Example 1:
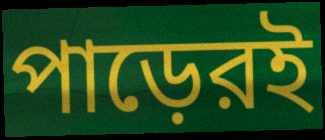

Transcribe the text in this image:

পাড়েরই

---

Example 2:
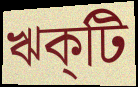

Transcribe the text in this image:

ঋক্‌টি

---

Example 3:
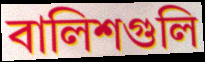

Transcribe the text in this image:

বালিশগুলি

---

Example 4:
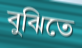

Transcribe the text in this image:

বুঝিতে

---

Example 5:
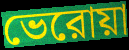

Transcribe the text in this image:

ভেরোয়া